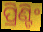
ପ୍ରିଣ୍ଟିଂ